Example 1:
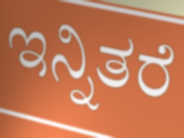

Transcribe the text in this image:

ಇನ್ನಿತರೆ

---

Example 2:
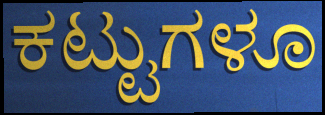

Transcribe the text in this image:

ಕಟ್ಟುಗಳೂ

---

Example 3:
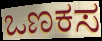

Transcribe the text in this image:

ಒಣಕಸ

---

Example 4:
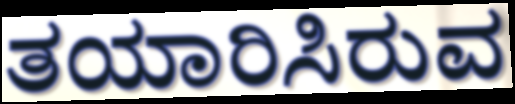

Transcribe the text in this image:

ತಯಾರಿಸಿರುವ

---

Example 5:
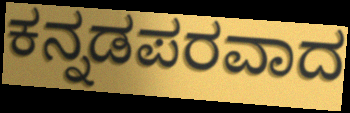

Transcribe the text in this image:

ಕನ್ನಡಪರವಾದ